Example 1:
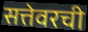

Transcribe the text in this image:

सत्तेवरची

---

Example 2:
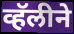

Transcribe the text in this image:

व्हॅलीने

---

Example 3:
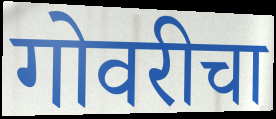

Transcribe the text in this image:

गोवरीचा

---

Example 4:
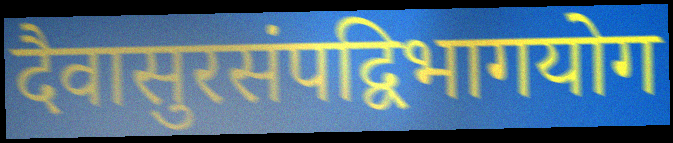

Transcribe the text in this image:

दैवासुरसंपद्विभागयोग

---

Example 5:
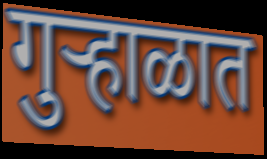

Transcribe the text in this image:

गुऱ्हाळात